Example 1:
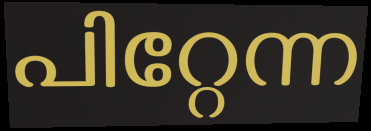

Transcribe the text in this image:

പിറ്റേന്ന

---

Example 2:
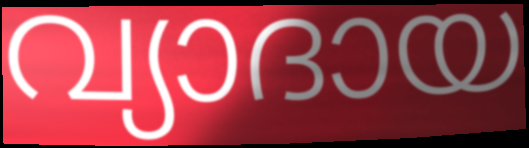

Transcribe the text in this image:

വ്യാദായ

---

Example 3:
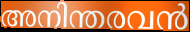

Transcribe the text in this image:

അനിന്തരവൻ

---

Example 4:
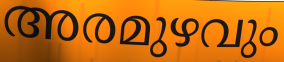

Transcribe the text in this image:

അരമുഴവും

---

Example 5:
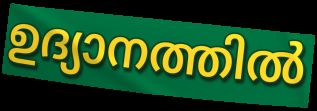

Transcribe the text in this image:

ഉദ്യാനത്തിൽ